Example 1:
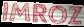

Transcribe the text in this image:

IMROZ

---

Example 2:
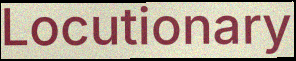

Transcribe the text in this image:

Locutionary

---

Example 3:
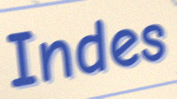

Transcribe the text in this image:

Indes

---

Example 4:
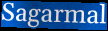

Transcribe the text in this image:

Sagarmal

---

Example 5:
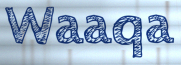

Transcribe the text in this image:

Waaqa